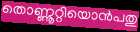
തൊണ്ണൂറ്റിയൊൻപതു